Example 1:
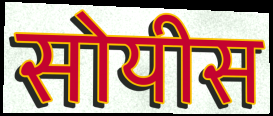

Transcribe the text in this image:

सोयीस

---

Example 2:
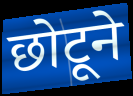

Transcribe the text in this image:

छोटूने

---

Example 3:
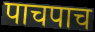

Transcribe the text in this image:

पाचपाच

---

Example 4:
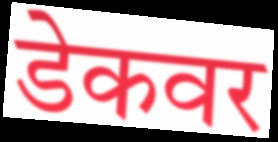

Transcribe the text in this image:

डेकवर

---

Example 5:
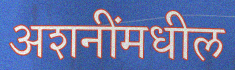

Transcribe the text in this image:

अशनींमधील